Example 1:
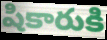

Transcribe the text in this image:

షికారుకి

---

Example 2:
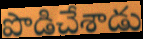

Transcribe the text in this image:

పొడిచేశాడు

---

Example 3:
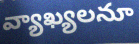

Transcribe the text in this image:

వ్యాఖ్యలనూ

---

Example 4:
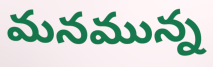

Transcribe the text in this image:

మనమున్న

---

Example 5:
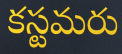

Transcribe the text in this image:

కస్టమరు